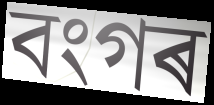
বংগৰ